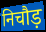
निचौड़